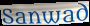
Sanwad